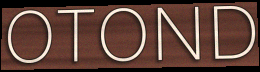
OTOND